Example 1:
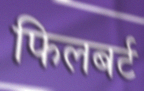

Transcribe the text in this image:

फिलबर्ट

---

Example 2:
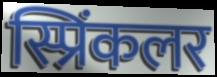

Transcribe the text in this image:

स्प्रिंकलर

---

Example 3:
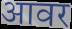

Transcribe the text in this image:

आवर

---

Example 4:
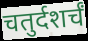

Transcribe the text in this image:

चतुर्दशर्चं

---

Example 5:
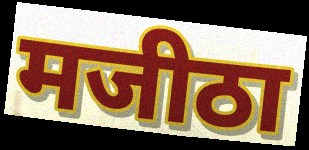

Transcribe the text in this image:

मजीठा